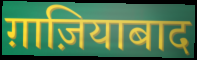
ग़ाज़ियाबाद